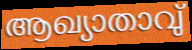
ആഖ്യാതാവു്